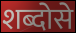
शब्दोसे